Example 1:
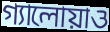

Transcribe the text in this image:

গ্যালোয়াও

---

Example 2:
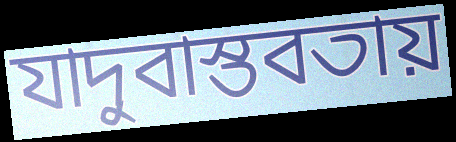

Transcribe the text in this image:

যাদুবাস্তবতায়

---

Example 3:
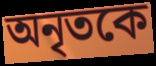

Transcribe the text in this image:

অনৃতকে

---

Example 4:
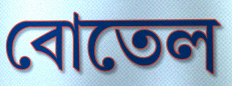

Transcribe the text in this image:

বোতেল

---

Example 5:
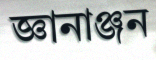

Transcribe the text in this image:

জ্ঞানাঞ্জন